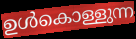
ഉൾകൊള്ളുന്ന